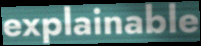
explainable